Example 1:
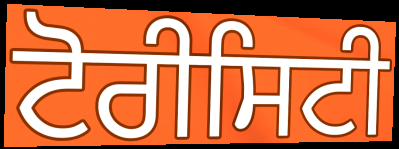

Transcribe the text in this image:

ਟੋਰੀਸਿਟੀ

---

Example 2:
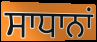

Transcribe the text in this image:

ਸਾਧਾਨਾਂ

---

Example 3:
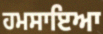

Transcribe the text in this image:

ਹਮਸਾਇਆ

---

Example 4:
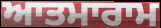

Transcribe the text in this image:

ਆਤਮਾਰਾਮ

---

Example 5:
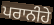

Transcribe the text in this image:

ਪਰਾਨੀਹੇ